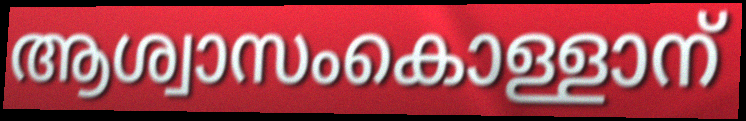
ആശ്വാസംകൊള്ളാന്